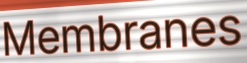
Membranes